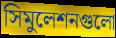
সিমুলেশনগুলো